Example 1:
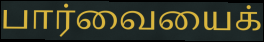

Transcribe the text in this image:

பார்வையைக்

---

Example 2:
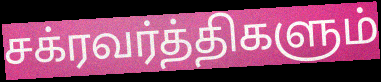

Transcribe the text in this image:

சக்ரவர்த்திகளும்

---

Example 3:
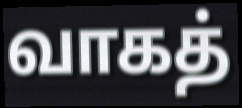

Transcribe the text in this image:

வாகத்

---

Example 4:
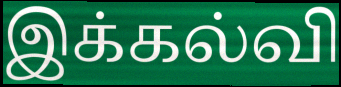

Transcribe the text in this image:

இக்கல்வி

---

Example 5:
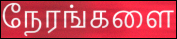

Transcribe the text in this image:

நேரங்களை